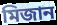
মিজান